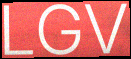
LGV